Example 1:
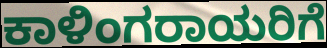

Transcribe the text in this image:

ಕಾಳಿಂಗರಾಯರಿಗೆ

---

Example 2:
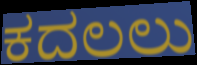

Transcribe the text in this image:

ಕದಲಲು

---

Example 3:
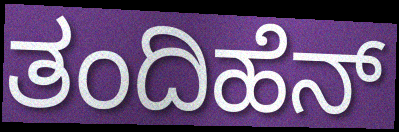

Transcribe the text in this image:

ತಂದಿಹೆನ್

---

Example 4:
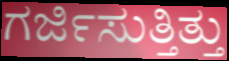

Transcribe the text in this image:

ಗರ್ಜಿಸುತ್ತಿತ್ತು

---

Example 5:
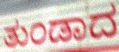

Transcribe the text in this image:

ತುಂಡಾದ